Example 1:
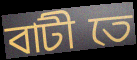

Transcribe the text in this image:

বাটীতে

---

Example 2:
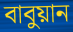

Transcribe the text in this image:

বাবুয়ান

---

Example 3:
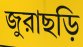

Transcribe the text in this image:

জুরাছড়ি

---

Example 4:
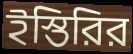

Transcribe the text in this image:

ইস্তিরির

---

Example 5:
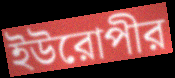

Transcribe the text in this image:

ইউরোপীর